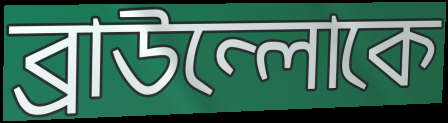
ব্রাউন্লোকে